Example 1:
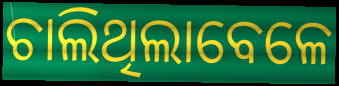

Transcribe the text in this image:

ଚାଲିଥିଲାବେଳେ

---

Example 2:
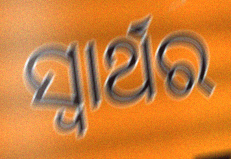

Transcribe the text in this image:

ସ୍ଵାର୍ଥର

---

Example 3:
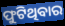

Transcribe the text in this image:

ଫୁଟିଥିବାର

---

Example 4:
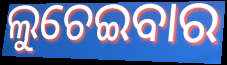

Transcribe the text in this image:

ଲୁଚେଇବାର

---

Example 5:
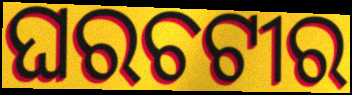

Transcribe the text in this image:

ଘରଚଟୀର